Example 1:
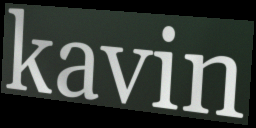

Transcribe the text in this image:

kavin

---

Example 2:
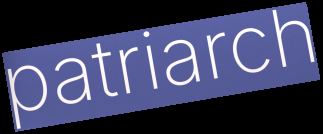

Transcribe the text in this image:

patriarch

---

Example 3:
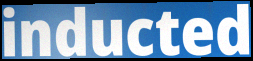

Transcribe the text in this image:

inducted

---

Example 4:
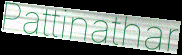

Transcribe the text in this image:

Pattinathar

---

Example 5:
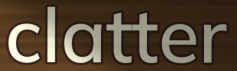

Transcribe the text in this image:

clatter